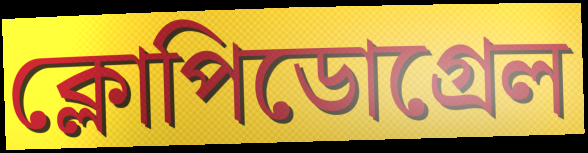
ক্লোপিডোগ্রেল